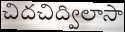
చిదచిద్విలాసా